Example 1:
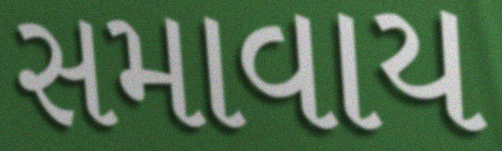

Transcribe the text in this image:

સમાવાય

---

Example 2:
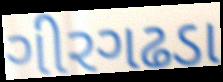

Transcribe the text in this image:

ગીરગઢડા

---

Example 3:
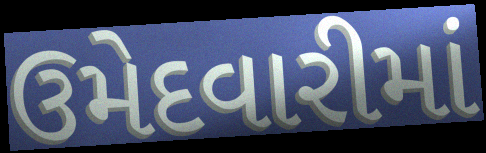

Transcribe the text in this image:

ઉમેદવારીમાં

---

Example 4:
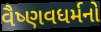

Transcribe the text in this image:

વૈષ્ણવધર્મનો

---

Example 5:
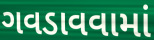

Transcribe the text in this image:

ગવડાવવામાં